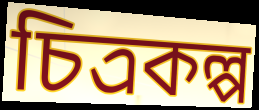
চিত্ৰকল্প